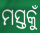
ମସ୍ତକୁଁ